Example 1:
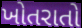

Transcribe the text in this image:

ખોતરાતો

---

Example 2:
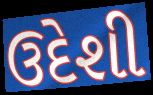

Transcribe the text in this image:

ઉદેશી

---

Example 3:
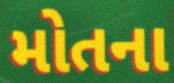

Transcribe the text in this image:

મોતના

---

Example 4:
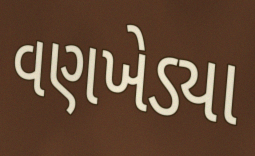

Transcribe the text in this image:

વણખેડ્યા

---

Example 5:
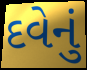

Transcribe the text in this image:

દવેનું